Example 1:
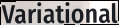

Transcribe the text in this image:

Variational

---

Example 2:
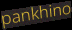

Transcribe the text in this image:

pankhino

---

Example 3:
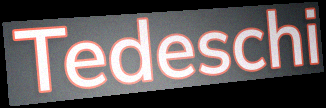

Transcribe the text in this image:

Tedeschi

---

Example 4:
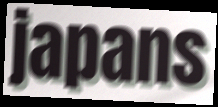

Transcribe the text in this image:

japans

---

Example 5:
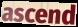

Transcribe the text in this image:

ascend